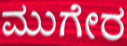
ಮುಗೇರ